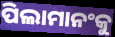
ପିଲାମାନଂକୁ